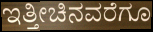
ಇತ್ತೀಚಿನವರೆಗೂ